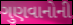
ગુણવાનોની